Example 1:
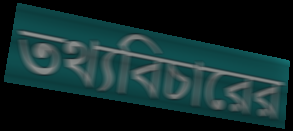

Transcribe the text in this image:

তথ্যবিচারের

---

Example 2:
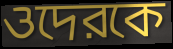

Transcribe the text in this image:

ওদেরকে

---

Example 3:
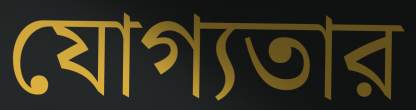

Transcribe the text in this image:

যোগ্যতার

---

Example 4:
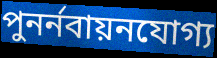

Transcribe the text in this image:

পুনর্নবায়নযোগ্য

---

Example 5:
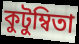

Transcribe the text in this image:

কুটুম্বিতা